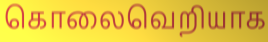
கொலைவெறியாக